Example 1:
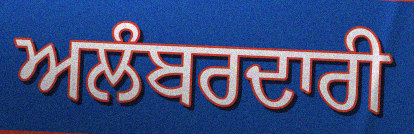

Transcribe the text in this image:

ਅਲੰਬਰਦਾਰੀ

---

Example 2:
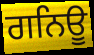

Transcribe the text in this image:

ਗਨਿਊ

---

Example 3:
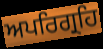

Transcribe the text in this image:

ਅਪਰਿਗ੍ਰਹਿ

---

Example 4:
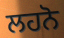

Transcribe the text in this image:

ਲਹਨੋ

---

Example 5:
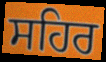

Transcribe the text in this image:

ਸਹਿਰ